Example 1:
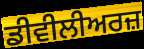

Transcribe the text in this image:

ਡੀਵੀਲੀਅਰਜ਼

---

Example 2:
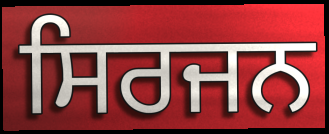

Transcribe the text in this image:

ਸਿਰਜਨ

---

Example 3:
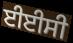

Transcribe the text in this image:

ਈਈਸੀ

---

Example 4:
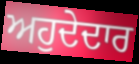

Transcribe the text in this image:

ਅਹੁਦੇਦਾਰ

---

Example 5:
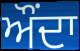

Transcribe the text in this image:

ਔਂਦਾ